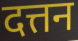
दत्तन